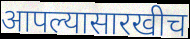
आपल्यासारखीच